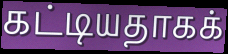
கட்டியதாகக்